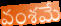
వంశమే